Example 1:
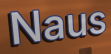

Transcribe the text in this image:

Naus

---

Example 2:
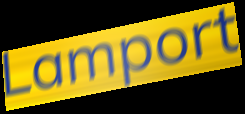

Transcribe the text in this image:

Lamport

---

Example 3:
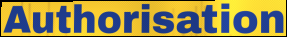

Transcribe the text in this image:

Authorisation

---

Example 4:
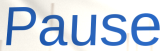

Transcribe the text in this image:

Pause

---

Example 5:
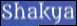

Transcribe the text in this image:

Shakya